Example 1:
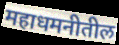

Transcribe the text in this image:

महाधमनीतील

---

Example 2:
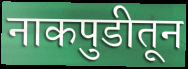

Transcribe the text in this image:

नाकपुडीतून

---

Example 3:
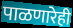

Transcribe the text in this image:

पाळणारेही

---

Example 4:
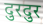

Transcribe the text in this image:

दुरदुर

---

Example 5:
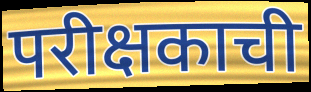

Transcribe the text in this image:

परीक्षकाची